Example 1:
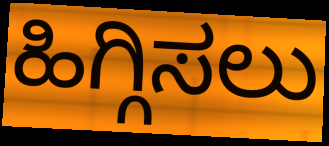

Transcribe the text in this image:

ಹಿಗ್ಗಿಸಲು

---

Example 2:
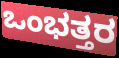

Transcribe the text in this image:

ಒಂಭತ್ತರ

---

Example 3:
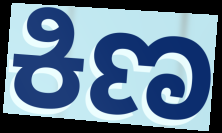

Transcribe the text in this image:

ಕಿಣ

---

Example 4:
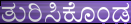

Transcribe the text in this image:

ತುರಿಸಿಕೊಂಡ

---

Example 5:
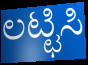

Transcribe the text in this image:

ಲಟ್ಟಿಸಿ